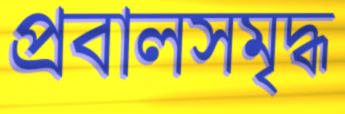
প্রবালসমৃদ্ধ